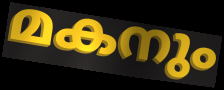
മകനും